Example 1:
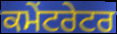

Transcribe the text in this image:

ਕਮੇਂਟਰੇਟਰ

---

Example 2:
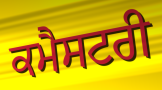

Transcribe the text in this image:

ਕਮੈਸਟਰੀ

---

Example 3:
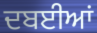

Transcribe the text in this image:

ਦਬਈਆਂ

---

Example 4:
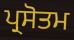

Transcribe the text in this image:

ਪ੍ਰਸੋਤਮ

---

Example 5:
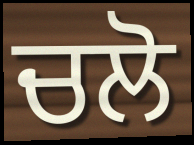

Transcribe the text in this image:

ਚਲੋ